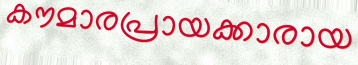
കൗമാരപ്രായക്കാരായ